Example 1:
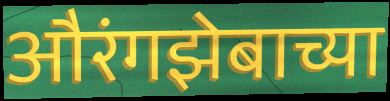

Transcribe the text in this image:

औरंगझेबाच्या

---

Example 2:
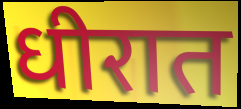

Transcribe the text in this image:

धीरात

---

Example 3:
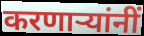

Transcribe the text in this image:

करणार्‍यांनीं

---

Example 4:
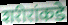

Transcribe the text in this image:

शरीरांकडे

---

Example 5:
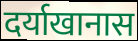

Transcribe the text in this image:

दर्याखानास